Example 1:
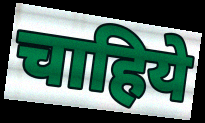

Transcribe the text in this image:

चाहिये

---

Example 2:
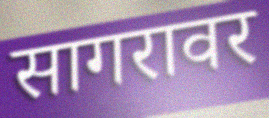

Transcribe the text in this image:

सागरावर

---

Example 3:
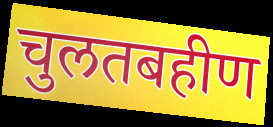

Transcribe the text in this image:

चुलतबहीण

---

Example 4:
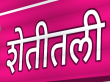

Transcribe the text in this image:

शेतीतली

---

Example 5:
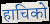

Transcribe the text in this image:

हाचिको